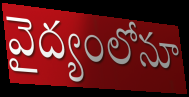
వైద్యంలోనూ